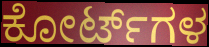
ಕೋರ್ಟ್‌ಗಳ